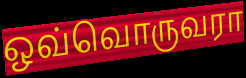
ஒவ்வொருவரா